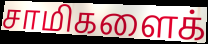
சாமிகளைக்